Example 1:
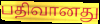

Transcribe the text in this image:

பதிவானது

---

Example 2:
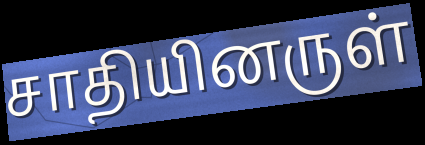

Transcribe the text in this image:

சாதியினருள்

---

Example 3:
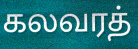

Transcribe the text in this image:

கலவரத்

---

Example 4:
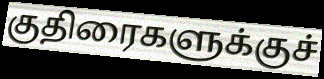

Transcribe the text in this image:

குதிரைகளுக்குச்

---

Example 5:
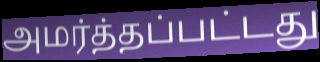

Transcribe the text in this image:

அமர்த்தப்பட்டது